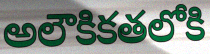
అలౌకికతలోకి